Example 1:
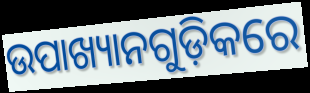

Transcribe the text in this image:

ଉପାଖ୍ୟାନଗୁଡ଼ିକରେ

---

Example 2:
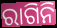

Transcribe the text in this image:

ରାଗିନି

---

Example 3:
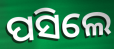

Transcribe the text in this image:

ପସିଲେ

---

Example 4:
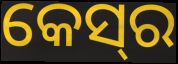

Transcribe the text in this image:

କେସ୍‌ର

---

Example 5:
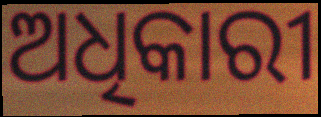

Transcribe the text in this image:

ଅଧିକାରୀ